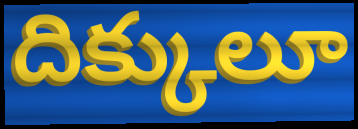
దిక్కులూ